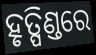
ହୃତ୍ପିଣ୍ଡରେ